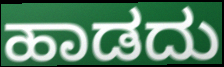
ಹಾಡದು